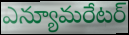
ఎన్యూమరేటర్